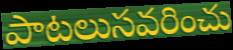
పాటలుసవరించు